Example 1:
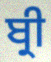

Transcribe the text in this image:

ਬ੍ਰੀ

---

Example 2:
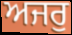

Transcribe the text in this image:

ਅਜਰੁ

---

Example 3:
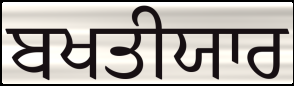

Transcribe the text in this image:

ਬਖਤੀਯਾਰ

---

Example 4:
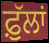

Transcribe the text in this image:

ਫ਼ੁੱਲਾਂ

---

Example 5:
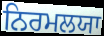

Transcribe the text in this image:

ਨਿਰਮਲਯਾ